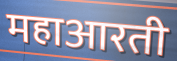
महाआरती